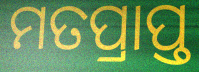
ମତପ୍ରାପ୍ତ